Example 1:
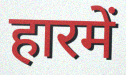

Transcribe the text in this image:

हारमें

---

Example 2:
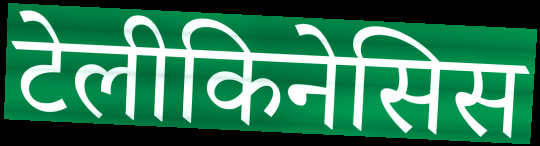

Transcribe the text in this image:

टेलीकिनेसिस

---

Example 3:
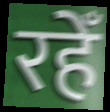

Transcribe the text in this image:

रहेँ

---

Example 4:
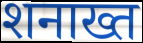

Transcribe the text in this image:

शनाख्त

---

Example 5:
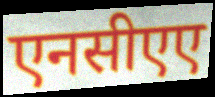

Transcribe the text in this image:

एनसीएए